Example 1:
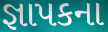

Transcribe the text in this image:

જ્ઞાપકના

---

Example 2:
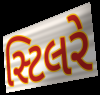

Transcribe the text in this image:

સ્ટિલરે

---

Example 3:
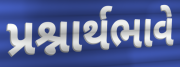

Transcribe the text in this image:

પ્રશ્નાર્થભાવે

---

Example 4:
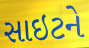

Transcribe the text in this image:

સાઇટને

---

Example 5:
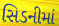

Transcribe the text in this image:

સિડનીમાં